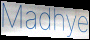
Madhye